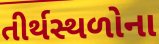
તીર્થસ્થળોના